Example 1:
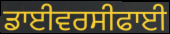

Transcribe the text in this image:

ਡਾਈਵਰਸੀਫਾਈ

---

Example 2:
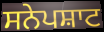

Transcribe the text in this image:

ਸਨੇਪਸ਼ਾਟ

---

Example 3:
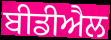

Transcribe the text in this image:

ਬੀਡੀਐਲ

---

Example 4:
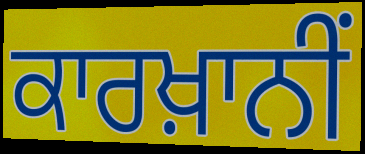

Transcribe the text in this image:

ਕਾਰਖ਼ਾਨੀਂ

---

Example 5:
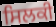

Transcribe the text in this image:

ਸਿਲਕੀ